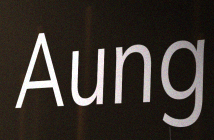
Aung